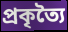
প্রকৃত্যৈ